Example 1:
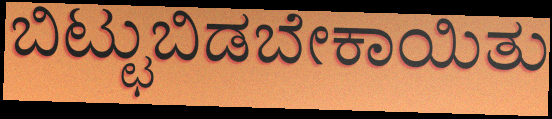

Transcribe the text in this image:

ಬಿಟ್ಟುಬಿಡಬೇಕಾಯಿತು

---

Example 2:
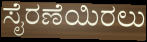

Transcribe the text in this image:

ಸೈರಣೆಯಿರಲು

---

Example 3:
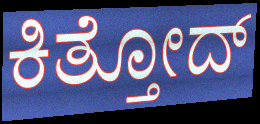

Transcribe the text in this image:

ಕಿತ್ತೋದ್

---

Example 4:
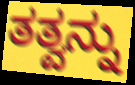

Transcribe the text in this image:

ತತ್ವನ್ನು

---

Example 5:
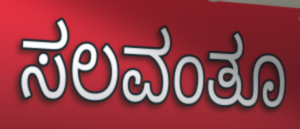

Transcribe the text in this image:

ಸಲವಂತೂ